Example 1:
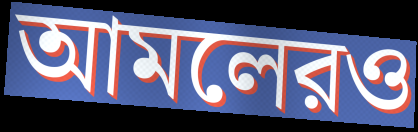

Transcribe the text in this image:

আমলেরও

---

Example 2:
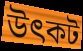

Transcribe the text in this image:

উৎকট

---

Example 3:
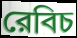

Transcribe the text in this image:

রেবিচ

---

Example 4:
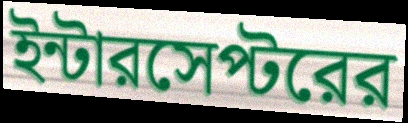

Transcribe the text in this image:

ইন্টারসেপ্টরের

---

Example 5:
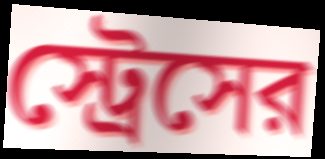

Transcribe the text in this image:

স্ট্রেসের